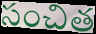
సంచిత